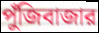
পুঁজিবাজার